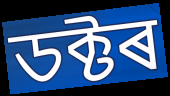
ডক্টৰ